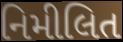
નિમીલિત